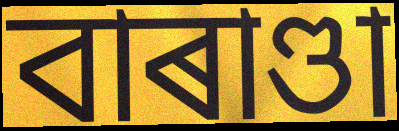
বাৰাণ্ডা